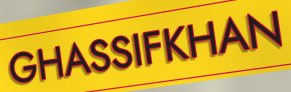
GHASSIFKHAN